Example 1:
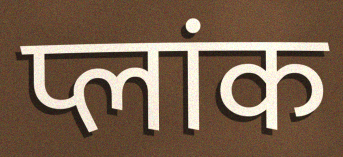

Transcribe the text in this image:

प्लांक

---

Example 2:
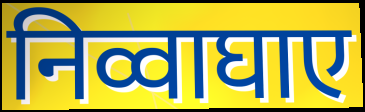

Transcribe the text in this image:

निव्वाघाए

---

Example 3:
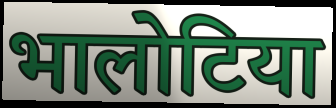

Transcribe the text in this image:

भालोटिया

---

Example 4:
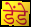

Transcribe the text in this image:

डेंडे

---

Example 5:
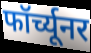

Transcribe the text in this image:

फॉर्च्यूनर